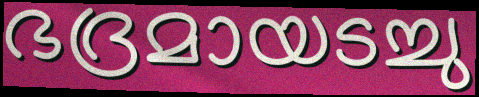
ഭദ്രമായടച്ചു